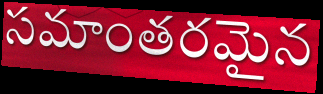
సమాంతరమైన